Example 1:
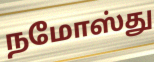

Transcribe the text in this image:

நமோஸ்து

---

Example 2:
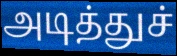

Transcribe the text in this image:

அடித்துச்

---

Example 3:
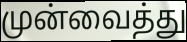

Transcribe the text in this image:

முன்வைத்து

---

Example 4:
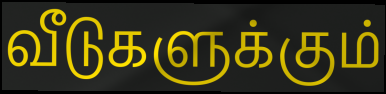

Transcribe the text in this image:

வீடுகளுக்கும்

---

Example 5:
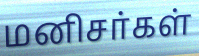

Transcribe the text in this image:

மனிசர்கள்